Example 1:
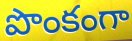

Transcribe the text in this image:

పొంకంగా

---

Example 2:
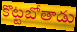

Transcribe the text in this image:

కొట్టబోతాడు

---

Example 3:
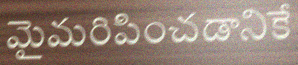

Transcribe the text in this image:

మైమరిపించడానికే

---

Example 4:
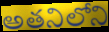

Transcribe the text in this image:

అతనిలోని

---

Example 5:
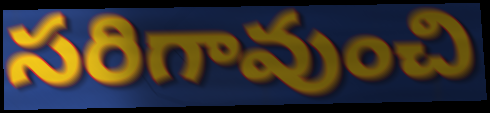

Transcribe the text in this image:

సరిగావుంచి